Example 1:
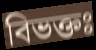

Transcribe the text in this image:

বিভক্তঃ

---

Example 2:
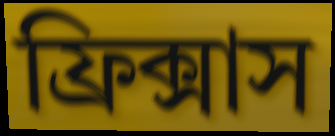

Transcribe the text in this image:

ফ্রিক্সাস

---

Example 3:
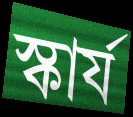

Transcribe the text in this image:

স্কার্য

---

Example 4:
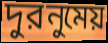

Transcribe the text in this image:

দুরনুমেয়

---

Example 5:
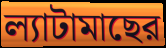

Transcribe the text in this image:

ল্যাটামাছের